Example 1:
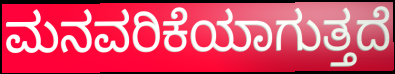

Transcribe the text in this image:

ಮನವರಿಕೆಯಾಗುತ್ತದೆ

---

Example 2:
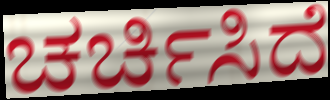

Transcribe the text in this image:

ಚರ್ಚಿಸಿದೆ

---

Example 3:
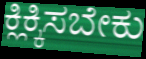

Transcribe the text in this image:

ಕ್ಲಿಕ್ಕಿಸಬೇಕು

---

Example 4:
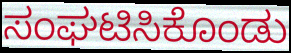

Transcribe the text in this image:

ಸಂಘಟಿಸಿಕೊಂಡು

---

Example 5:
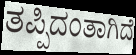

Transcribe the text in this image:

ತಪ್ಪಿದಂತಾಗಿದೆ